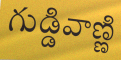
గుడ్డివాణ్ణి